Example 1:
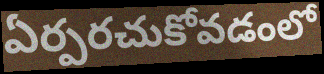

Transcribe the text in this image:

ఏర్పరచుకోవడంలో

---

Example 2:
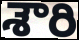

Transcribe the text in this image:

శౌరి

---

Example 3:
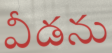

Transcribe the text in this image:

వీడను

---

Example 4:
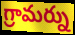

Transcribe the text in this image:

గ్రామర్ను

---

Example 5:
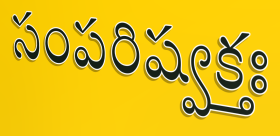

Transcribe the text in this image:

సంపరిష్వక్తః